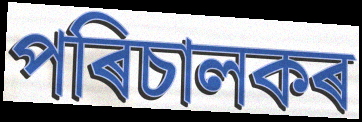
পৰিচালকৰ